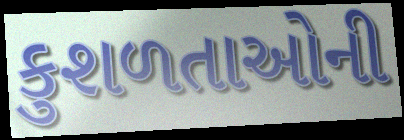
કુશળતાઓની